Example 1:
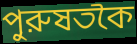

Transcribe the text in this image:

পুৰুষতকৈ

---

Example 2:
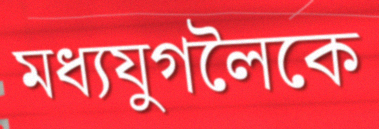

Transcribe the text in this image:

মধ্যযুগলৈকে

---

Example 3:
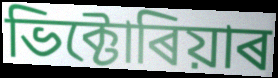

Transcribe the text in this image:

ভিক্টোৰিয়াৰ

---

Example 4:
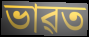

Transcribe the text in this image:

ভাৱত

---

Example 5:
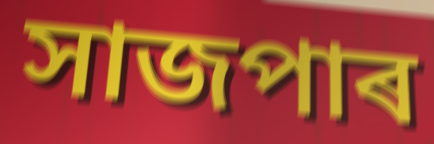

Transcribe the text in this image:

সাজপাৰ